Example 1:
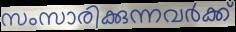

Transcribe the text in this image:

സംസാരിക്കുന്നവർക്ക്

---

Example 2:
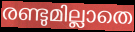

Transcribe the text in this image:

രണ്ടുമില്ലാതെ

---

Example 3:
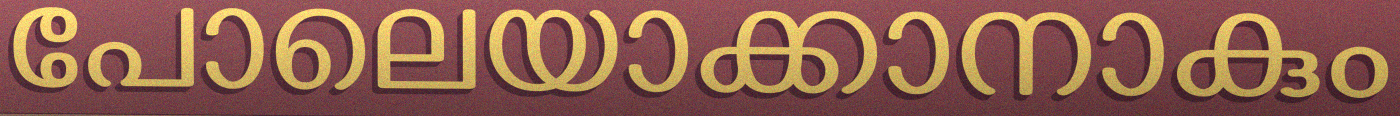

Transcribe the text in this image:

പോലെയാക്കാനാകും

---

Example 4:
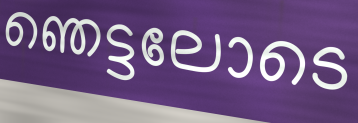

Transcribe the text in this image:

ഞെട്ടലോടെ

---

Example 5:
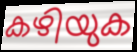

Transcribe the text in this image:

കഴിയുക